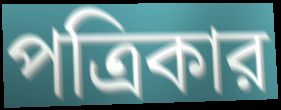
পত্রিকার